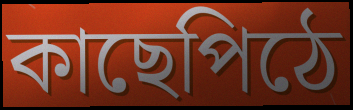
কাছেপিঠে